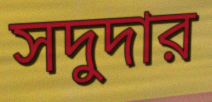
সদুদার